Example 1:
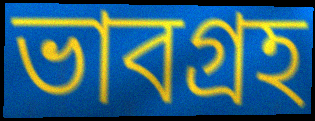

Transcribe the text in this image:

ভাবগ্রহ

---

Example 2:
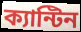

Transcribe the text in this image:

ক্যান্টিন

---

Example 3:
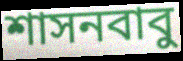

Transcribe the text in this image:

শাসনবাবু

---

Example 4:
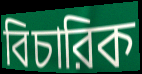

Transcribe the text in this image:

বিচারিক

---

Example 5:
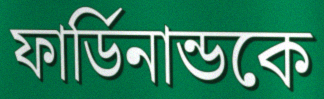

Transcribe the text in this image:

ফার্ডিনান্ডকে